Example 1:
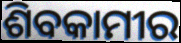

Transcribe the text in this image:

ଶିବକାମୀର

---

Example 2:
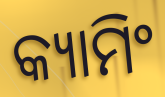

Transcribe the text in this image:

କ୍ୟାମିଂ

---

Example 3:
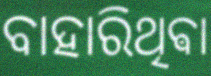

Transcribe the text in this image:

ବାହାରିଥିଵା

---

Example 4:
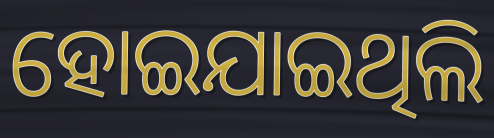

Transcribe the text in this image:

ହୋଇଯାଇଥିଲି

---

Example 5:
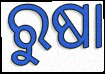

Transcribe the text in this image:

ରୁଷା